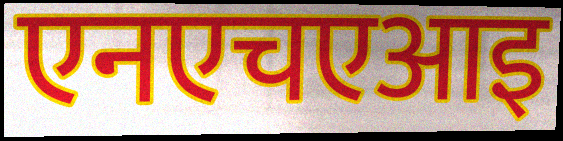
एनएचएआइ